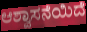
ಆಶ್ವಾಸನೆಯಿದೆ